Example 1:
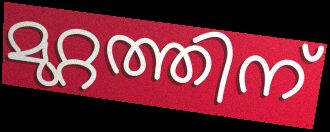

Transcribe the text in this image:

മുറ്റത്തിന്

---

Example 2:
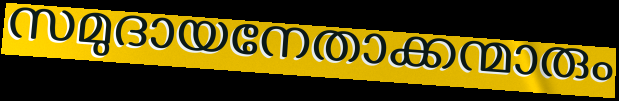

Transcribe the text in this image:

സമുദായനേതാക്കന്മാരും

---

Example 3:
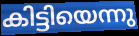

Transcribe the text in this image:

കിട്ടിയെന്നു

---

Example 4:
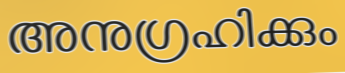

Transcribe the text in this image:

അനുഗ്രഹിക്കും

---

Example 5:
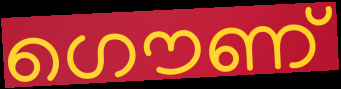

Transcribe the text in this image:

ഗൌണ്